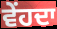
ਵੇਂਹਦਾ